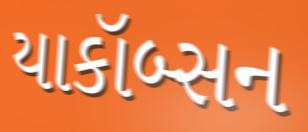
યાકૉબ્સન